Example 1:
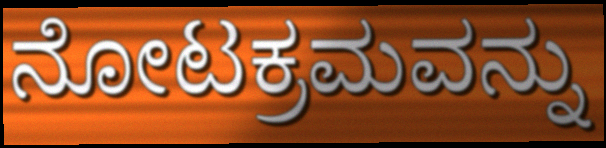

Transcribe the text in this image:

ನೋಟಕ್ರಮವನ್ನು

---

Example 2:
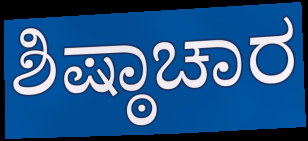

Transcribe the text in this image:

ಶಿಷ್ಠಾಚಾರ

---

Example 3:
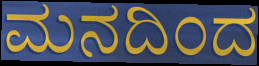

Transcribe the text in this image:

ಮನದಿಂದ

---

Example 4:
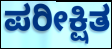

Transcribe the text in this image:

ಪರೀಕ್ಷಿತ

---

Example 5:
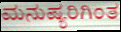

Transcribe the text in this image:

ಮನುಷ್ಯರಿಗಿಂತ